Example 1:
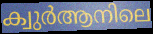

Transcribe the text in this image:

ക്വുർആനിലെ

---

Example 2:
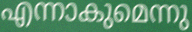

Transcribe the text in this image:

എന്നാകുമെന്നു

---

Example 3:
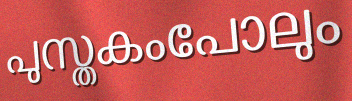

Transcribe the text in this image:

പുസ്തകംപോലും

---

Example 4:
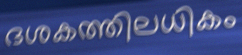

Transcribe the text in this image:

ദശകത്തിലധികം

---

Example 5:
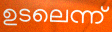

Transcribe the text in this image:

ഉടലെന്ന്